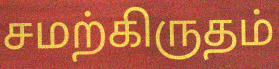
சமற்கிருதம்